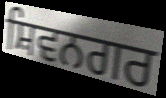
ਸ਼ਿਵਨਗਰ